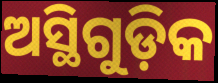
ଅସ୍ଥିଗୁଡ଼ିକ